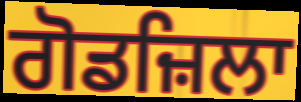
ਗੋਡਜ਼ਿਲਾ